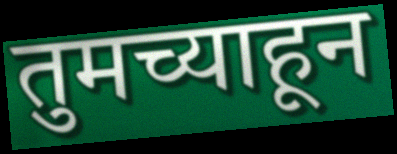
तुमच्याहून